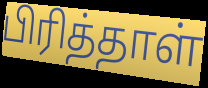
பிரித்தாள்